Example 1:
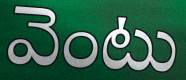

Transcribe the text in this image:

వెంటు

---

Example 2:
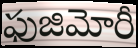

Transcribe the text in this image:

ఫుజిమోరీ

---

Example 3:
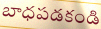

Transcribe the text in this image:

బాధపడకండి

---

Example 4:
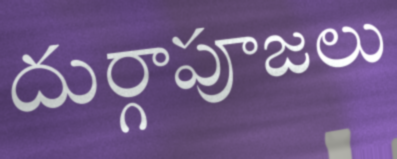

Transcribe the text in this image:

దుర్గాపూజలు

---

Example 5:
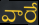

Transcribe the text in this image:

వారే